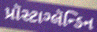
પ્રૉસ્ટાગ્લૅન્ડિન